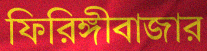
ফিরিঙ্গীবাজার